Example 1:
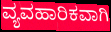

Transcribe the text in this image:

ವ್ಯವಹಾರಿಕವಾಗಿ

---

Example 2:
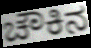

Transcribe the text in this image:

ಚೌಕಿನ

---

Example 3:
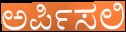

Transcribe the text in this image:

ಅರ್ಪಿಸಲಿ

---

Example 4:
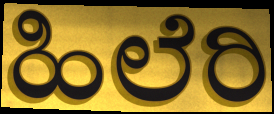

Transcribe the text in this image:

ಹಿಲೆರಿ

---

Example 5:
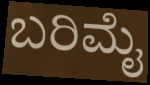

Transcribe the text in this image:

ಬರಿಮೈ